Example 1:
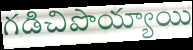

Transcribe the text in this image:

గడిచిపొయ్యాయి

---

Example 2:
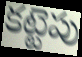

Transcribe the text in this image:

కట్టెపు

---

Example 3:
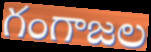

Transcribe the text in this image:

గంగాజల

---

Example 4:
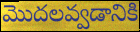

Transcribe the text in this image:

మొదలవ్వడానికి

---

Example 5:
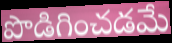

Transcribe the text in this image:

పొడిగించడమే